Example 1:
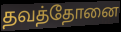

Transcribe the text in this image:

தவத்தோனை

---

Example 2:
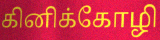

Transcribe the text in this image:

கினிக்கோழி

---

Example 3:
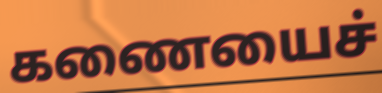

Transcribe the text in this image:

கணையைச்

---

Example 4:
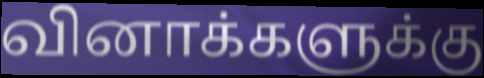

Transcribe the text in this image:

வினாக்களுக்கு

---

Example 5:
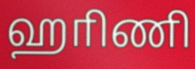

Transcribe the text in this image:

ஹரிணி